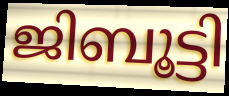
ജിബൂട്ടി